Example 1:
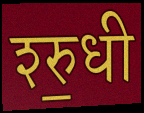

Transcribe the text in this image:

श्रु॒धी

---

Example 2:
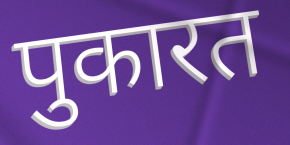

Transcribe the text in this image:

पुकारत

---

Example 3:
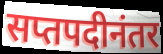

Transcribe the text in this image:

सप्तपदीनंतर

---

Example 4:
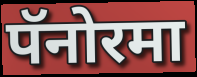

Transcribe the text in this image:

पॅनोरमा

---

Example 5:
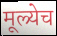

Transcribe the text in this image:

मूल्येच